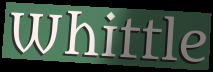
Whittle